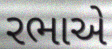
રભાએ